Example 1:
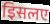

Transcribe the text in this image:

इिसलए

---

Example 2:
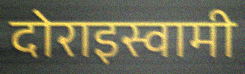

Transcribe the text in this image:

दोराइस्वामी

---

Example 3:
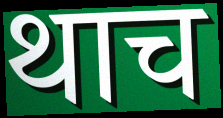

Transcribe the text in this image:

थाच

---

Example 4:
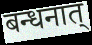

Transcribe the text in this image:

बन्धनात्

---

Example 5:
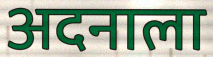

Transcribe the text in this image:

अदनाला